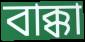
বাক্কা